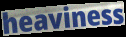
heaviness